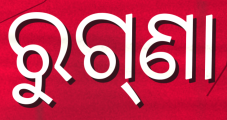
ରୁଗ୍‌ଣା